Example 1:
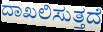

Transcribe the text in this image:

ದಾಖಲಿಸುತ್ತದೆ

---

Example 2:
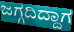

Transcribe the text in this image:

ಜಗ್ಗದಿದ್ದಾಗ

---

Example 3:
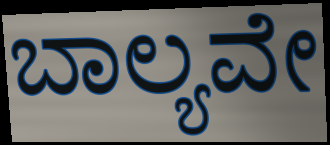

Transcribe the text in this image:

ಬಾಲ್ಯವೇ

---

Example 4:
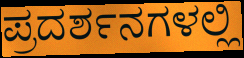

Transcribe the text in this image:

ಪ್ರದರ್ಶನಗಳಲ್ಲಿ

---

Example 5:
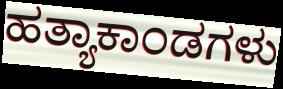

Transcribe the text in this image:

ಹತ್ಯಾಕಾಂಡಗಳು